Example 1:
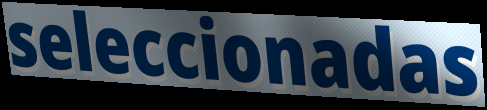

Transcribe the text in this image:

seleccionadas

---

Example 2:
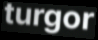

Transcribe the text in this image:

turgor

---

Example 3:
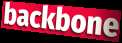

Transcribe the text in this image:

backbone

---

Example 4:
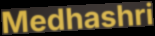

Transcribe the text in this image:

Medhashri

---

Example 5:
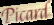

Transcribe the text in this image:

Picard